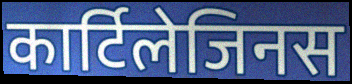
कार्टिलेजिनस